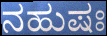
ನಹುಷಃ